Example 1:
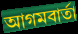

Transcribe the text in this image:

আগমবার্তা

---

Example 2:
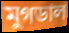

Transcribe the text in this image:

মুগডাল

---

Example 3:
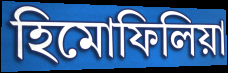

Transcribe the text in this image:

হিমোফিলিয়া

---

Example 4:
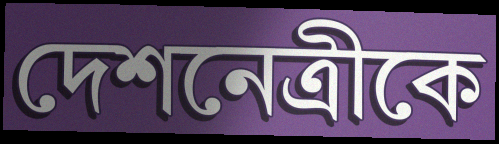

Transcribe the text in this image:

দেশনেত্রীকে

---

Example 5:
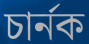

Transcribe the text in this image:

চার্নক